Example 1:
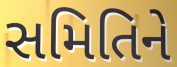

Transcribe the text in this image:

સમિતિને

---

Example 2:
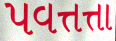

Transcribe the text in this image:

પવત્તત્તા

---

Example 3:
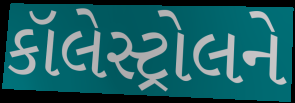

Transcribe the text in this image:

કૉલેસ્ટ્રોલને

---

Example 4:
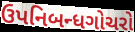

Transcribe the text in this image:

ઉપનિબન્ધગોચરો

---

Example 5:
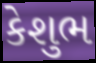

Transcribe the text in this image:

કેશુભ